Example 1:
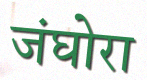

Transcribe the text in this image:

जंघोरा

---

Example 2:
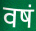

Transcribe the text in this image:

वषं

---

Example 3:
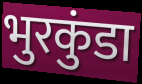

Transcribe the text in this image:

भुरकुंडा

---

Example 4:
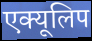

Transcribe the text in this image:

एक्यूलिप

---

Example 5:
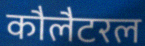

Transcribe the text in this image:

कौलैटरल